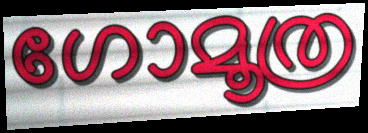
ഗോമൂത്ര